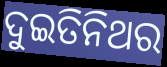
ଦୁଇତିନିଥର